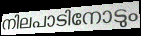
നിലപാടിനോടും